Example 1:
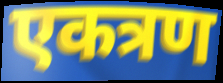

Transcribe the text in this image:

एकत्रण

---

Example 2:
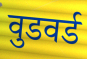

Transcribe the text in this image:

वुडवर्ड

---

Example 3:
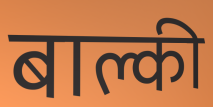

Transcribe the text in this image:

बाल्‍की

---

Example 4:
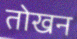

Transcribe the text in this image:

तोखन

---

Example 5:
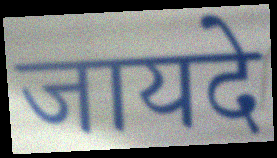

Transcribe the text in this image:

जायदे